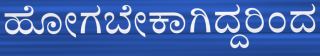
ಹೋಗಬೇಕಾಗಿದ್ದರಿಂದ